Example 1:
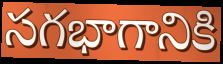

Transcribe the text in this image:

సగభాగానికి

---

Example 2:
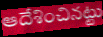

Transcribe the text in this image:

ఆదేశించినట్టు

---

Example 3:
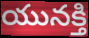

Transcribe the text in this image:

యునక్తి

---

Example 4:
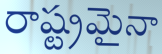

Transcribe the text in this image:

రాష్ట్రమైనా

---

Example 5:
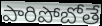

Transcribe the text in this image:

పారిపోబోతే